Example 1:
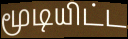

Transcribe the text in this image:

மூடியிட்ட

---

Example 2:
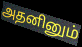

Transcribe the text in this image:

அதனினும்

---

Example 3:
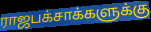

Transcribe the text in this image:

ராஜபக்சாக்களுக்கு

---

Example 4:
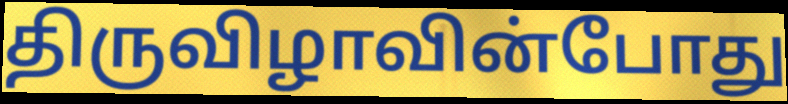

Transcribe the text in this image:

திருவிழாவின்போது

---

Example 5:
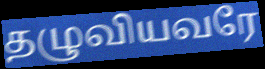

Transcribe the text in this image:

தழுவியவரே